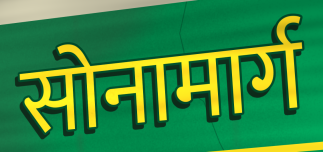
सोनामार्ग